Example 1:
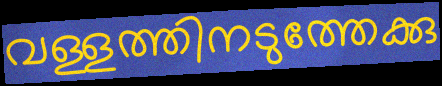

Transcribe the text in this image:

വള്ളത്തിനടുത്തേക്കു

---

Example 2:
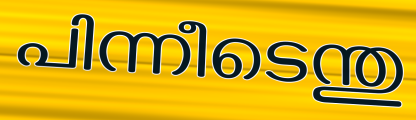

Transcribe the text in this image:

പിന്നീടെന്തു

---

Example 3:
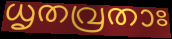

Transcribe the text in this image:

ധൃതവ്രതാഃ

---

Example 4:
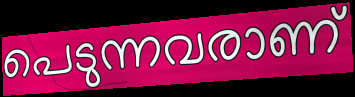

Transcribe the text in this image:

പെടുന്നവരാണ്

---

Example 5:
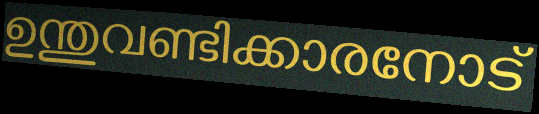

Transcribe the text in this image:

ഉന്തുവണ്ടിക്കാരനോട്